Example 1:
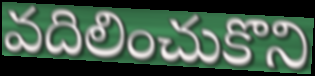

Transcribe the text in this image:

వదిలించుకొని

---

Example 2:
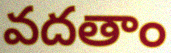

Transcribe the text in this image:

వదతాం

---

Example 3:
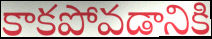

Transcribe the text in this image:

కాకపోవడానికి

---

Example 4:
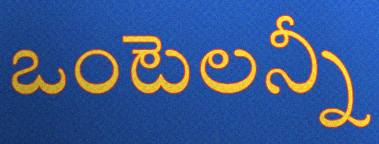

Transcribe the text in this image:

ఒంటెలన్నీ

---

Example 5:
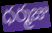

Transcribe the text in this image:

ధర్మజు